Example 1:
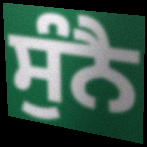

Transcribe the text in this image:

ਸੁੰਨੈ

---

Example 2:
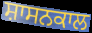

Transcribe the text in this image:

ਸ਼ਾਸਨਕਾਲ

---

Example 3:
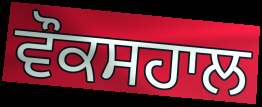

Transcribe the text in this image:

ਵੌਕਸਹਾਲ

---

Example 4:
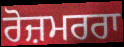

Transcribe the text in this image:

ਰੋਜ਼ਮਰਰਾ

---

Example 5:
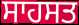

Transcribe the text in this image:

ਸਾਹਸਤ